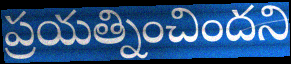
ప్రయత్నించిందని